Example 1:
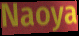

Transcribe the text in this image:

Naoya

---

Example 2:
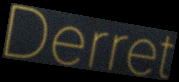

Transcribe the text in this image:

Derret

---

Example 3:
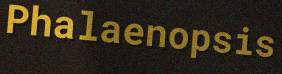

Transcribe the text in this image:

Phalaenopsis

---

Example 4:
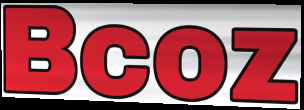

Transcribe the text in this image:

Bcoz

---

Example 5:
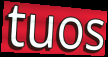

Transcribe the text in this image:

tuos